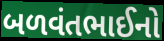
બળવંતભાઈનો